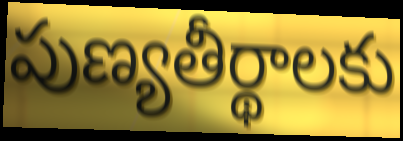
పుణ్యతీర్థాలకు